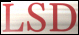
LSD